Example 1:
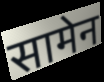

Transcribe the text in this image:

सामेन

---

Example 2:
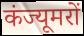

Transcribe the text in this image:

कंज्यूमरों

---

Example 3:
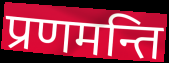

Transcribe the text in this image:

प्रणमन्ति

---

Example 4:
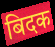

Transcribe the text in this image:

बिदक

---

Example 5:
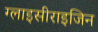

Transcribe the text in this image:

ग्लाइसीराइजिन